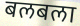
बलबला